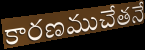
కారణముచేతనే